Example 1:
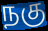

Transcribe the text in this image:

நகு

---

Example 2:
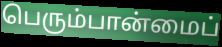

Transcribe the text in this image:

பெரும்பான்மைப்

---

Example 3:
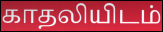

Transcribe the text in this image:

காதலியிடம்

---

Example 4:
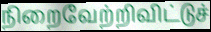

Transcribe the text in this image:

நிறைவேற்றிவிட்டுச்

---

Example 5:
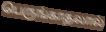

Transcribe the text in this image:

பெருங்காதலால்